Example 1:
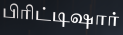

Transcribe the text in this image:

பிரிட்டிஷார்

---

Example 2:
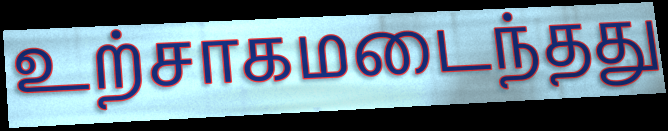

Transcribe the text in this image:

உற்சாகமடைந்தது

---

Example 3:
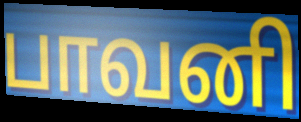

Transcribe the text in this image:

பாவனி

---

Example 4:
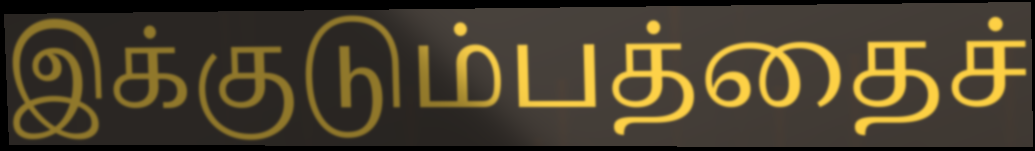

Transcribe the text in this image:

இக்குடும்பத்தைச்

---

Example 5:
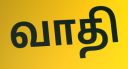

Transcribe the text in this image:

வாதி